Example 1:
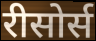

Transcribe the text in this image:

रीसोर्स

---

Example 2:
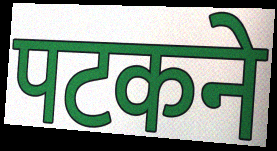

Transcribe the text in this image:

पटकने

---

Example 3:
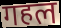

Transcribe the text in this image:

गहल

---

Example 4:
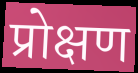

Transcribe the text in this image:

प्रोक्षण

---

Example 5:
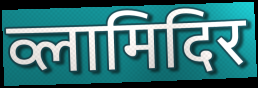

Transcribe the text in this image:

व्लामिदिर